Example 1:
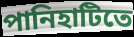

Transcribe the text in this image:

পানিহাটিতে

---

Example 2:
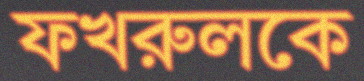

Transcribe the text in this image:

ফখরুলকে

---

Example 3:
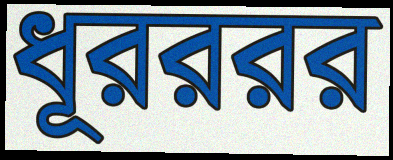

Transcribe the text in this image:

ধূরররর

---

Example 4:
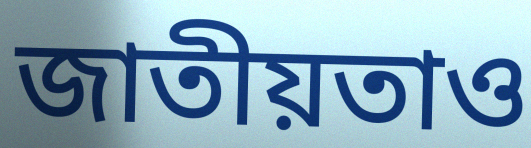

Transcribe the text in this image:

জাতীয়তাও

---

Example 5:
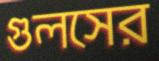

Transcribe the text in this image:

গুলসের